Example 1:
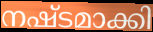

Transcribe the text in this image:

നഷ്ടമാക്കി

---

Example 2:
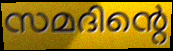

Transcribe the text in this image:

സമദിന്റെ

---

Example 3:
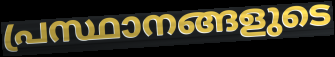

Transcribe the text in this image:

പ്രസ്ഥാനങ്ങളുടെ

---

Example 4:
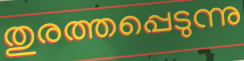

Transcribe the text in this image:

തുരത്തപ്പെടുന്നു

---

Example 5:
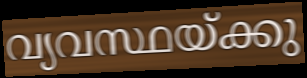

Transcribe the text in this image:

വ്യവസ്ഥയ്ക്കു